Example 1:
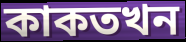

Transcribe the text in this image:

কাকতখন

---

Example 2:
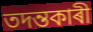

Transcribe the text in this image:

তদন্তকাৰী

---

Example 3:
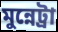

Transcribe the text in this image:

মুন্নেট্ৰা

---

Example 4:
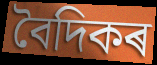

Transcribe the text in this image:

বৈদিকৰ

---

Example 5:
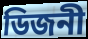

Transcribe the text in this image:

ডিজনী